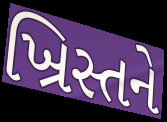
ખ્રિસ્તને